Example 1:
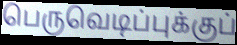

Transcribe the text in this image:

பெருவெடிப்புக்குப்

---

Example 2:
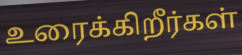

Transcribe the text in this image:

உரைக்கிறீர்கள்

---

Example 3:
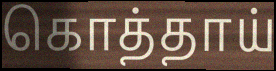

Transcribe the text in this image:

கொத்தாய்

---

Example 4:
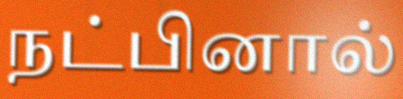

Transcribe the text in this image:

நட்பினால்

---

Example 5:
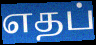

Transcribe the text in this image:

எதப்